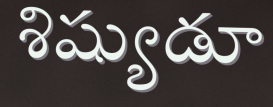
శిష్యుడూ